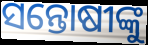
ସନ୍ତୋଷୀଙ୍କୁ